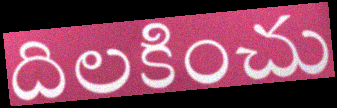
దిలకించు